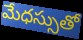
మేధస్సుతో